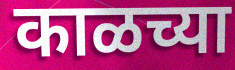
काळच्या